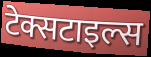
टेक्सटाइल्स